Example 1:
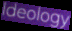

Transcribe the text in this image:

Ideology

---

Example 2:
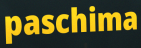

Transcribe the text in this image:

paschima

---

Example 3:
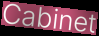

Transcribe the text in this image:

Cabinet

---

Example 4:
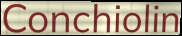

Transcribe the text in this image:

Conchiolin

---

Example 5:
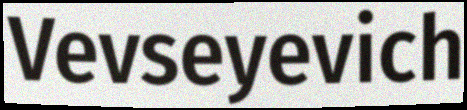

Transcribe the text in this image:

Vevseyevich